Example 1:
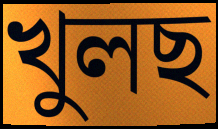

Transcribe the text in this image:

খুলছ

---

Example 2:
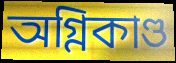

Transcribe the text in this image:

অগ্নিকাণ্ড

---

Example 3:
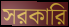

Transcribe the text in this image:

সরকারি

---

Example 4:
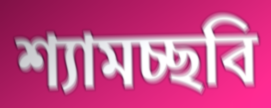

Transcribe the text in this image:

শ্যামচ্ছবি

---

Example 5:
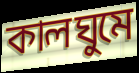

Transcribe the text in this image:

কালঘুমে